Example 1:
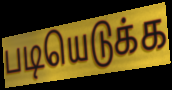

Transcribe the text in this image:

படியெடுக்க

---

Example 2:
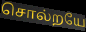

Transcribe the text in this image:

சொல்றயே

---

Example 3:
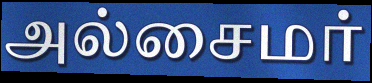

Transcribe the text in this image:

அல்சைமர்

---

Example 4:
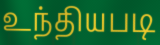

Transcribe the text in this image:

உந்தியபடி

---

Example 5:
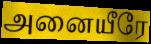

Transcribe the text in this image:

அனையீரே